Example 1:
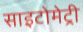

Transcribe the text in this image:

साइटोमेट्री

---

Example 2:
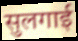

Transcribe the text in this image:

सुलगाई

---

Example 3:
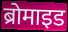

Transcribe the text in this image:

ब्रोमाइड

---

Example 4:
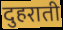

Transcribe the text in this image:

दुहराती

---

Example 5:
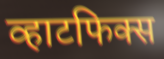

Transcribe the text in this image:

व्हाटफिक्स